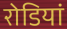
रोडियां